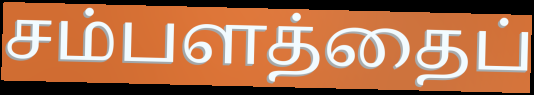
சம்பளத்தைப்